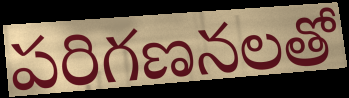
పరిగణనలతో